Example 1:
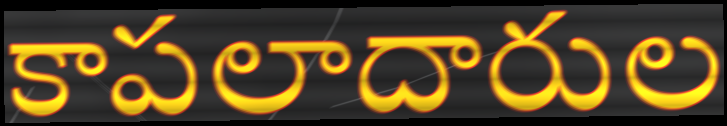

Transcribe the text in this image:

కాపలాదారుల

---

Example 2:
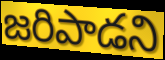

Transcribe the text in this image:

జరిపాడని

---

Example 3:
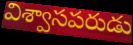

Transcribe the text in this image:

విశ్వాసపరుడు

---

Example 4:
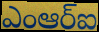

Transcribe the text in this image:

ఎంఆర్ఐ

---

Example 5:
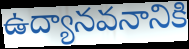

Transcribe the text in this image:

ఉద్యానవనానికి